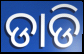
ଡାଡି